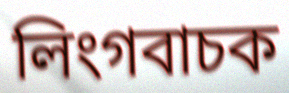
লিংগবাচক